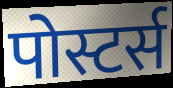
पोस्टर्स